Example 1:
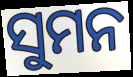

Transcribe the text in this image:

ସୁମନ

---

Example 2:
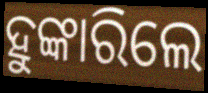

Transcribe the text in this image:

ହୁଙ୍କାରିଲେ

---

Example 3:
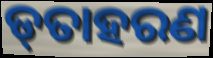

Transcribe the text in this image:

ଡ୍‌ତାହରଣ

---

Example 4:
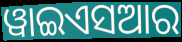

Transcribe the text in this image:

ୱାଇଏସଆର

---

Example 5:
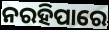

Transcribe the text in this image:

ନରହିପାରେ